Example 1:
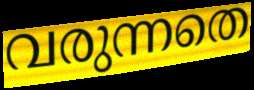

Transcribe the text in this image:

വരുന്നതെ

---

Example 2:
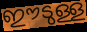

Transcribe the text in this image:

ഈടുള്ള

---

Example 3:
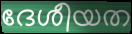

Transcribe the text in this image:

ദേശീയത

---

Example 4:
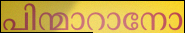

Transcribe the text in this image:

പിന്മാറാനോ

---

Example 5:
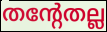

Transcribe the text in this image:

തന്റേതല്ല